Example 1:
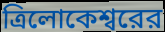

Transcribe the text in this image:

ত্রিলোকেশ্বরের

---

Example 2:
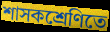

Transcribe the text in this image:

শাসকশ্রেণিতে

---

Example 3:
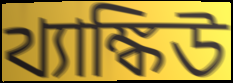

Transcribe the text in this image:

থ্যাঙ্কিউ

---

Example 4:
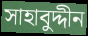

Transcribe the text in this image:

সাহাবুদ্দীন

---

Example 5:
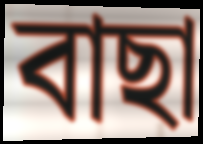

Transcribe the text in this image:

বাছা